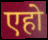
एहो